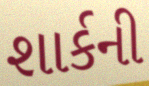
શાર્કની